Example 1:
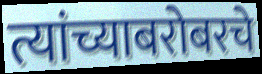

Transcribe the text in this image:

त्यांच्याबरोबरचे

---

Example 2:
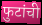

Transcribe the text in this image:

फुटांची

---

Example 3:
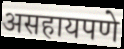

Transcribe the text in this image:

असहायपणे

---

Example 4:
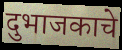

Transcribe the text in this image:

दुभाजकाचे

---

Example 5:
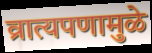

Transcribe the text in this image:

व्रात्यपणामुळे